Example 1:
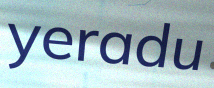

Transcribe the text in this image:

yeradu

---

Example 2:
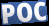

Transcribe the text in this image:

POC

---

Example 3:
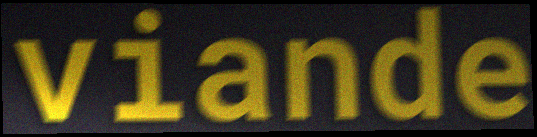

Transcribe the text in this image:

viande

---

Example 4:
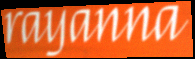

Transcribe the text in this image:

rayanna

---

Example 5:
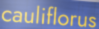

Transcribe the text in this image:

cauliflorus